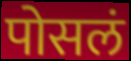
पोसलं